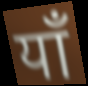
याँ